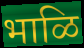
भाळि